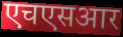
एचएसआर